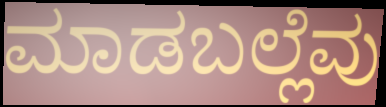
ಮಾಡಬಲ್ಲೆವು